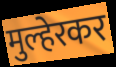
मुल्हेरकर